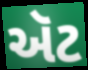
ઍટ